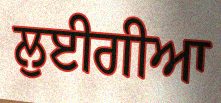
ਲੁਈਗੀਆ